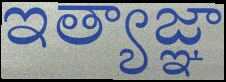
ఇత్యాజ్ఞా